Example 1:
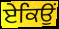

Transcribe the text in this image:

ਏਕਿਉਂ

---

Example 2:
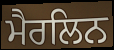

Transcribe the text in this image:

ਮੈਰਲਿਨ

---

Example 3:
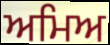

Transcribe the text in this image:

ਅਮਿਅ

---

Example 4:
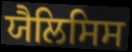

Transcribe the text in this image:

ਯੈਲਿਸਿਸ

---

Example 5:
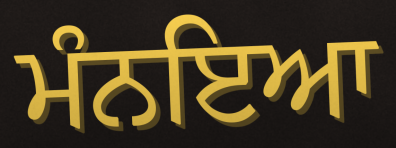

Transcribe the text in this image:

ਮੰਨਇਆ